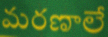
మరణాలే